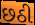
છઠી